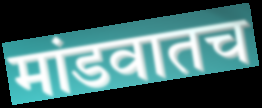
मांडवातच